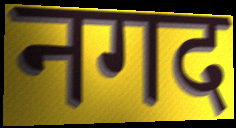
नगद